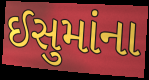
ઈસુમાંના